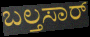
ಬಲ್ತಸಾರ್